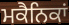
ਮਕੈਨਿਕਾਂ